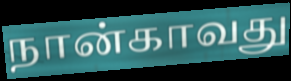
நான்காவது